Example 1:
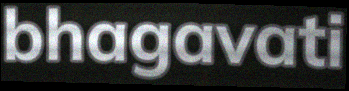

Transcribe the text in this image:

bhagavati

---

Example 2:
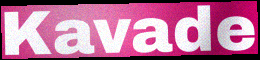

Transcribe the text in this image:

Kavade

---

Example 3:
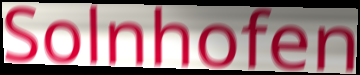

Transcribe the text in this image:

Solnhofen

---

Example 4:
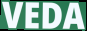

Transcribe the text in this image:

VEDA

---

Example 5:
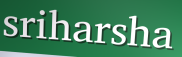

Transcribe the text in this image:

sriharsha